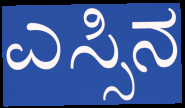
ಎಸ್ಸಿನ